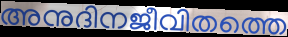
അനുദിനജീവിതത്തെ